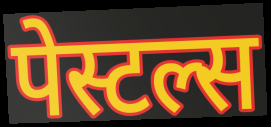
पेस्टल्स